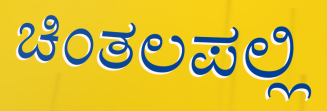
ಚಿಂತಲಪಲ್ಲಿ